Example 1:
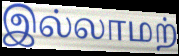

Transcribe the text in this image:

இல்லாமற்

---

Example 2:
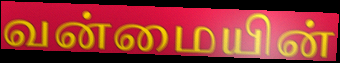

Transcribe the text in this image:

வன்மையின்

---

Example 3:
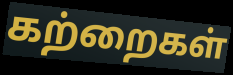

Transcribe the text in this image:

கற்றைகள்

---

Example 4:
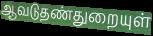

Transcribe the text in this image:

ஆவடுதண்துறையுள்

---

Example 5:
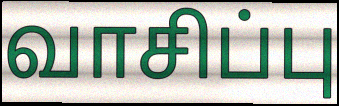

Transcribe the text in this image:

வாசிப்பு